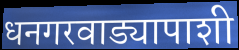
धनगरवाड्यापाशी